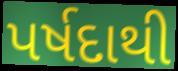
પર્ષદાથી